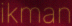
ikman